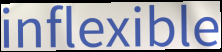
inflexible